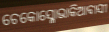
ଚେକୋସ୍ଳୋଭାକିଆବାସୀ